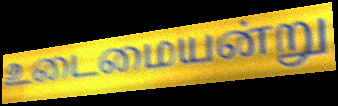
உடைமையன்று